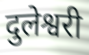
दुलेश्वरी